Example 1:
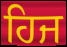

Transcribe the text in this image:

ਹਿਜ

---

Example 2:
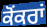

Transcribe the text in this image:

ਕੋਂਕਰਾਂ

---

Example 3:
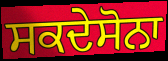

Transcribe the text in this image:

ਸਕਦੇਸੋਨਾ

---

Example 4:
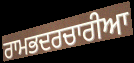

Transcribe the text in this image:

ਰਾਮਭਦਰਚਾਰੀਆ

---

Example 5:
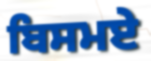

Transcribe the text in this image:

ਬਿਸਮਏ